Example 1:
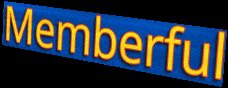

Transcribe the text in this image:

Memberful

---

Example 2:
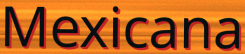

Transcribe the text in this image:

Mexicana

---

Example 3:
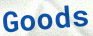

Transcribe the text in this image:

Goods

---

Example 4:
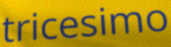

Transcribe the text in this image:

tricesimo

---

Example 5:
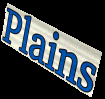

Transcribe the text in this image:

Plains